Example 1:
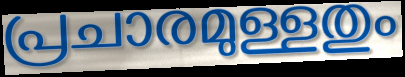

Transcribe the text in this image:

പ്രചാരമുള്ളതും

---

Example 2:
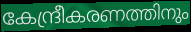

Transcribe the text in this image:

കേന്ദ്രീകരണത്തിനും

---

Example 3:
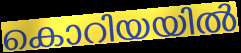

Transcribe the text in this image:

കൊറിയയിൽ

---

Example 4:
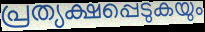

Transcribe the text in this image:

പ്രത്യക്ഷപ്പെടുകയും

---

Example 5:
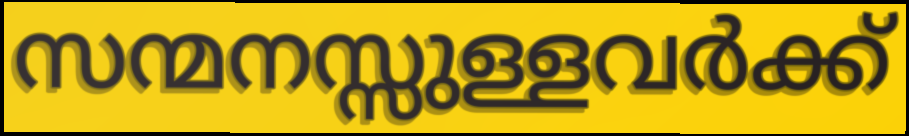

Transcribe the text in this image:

സന്മനസ്സുള്ളവർക്ക്